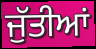
ਜੁੱਤੀਆਂ